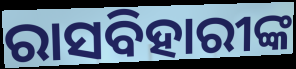
ରାସବିହାରୀଙ୍କ